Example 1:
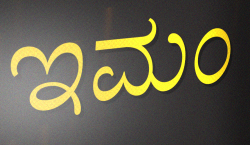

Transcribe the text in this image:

ಇಮಂ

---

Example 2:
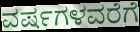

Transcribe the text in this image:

ವರ್ಷಗಳವರೆಗೆ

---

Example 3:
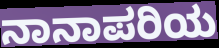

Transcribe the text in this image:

ನಾನಾಪರಿಯ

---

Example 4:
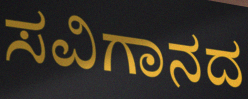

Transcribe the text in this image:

ಸವಿಗಾನದ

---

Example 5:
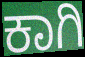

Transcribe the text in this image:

ಕಾಗಿ